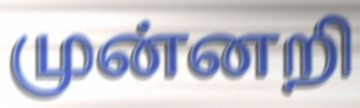
முன்னறி